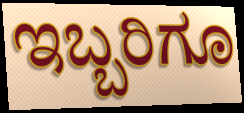
ಇಬ್ಬರಿಗೂ